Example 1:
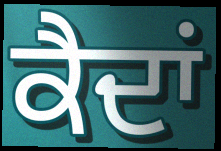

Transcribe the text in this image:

ਕੈਦਾਂ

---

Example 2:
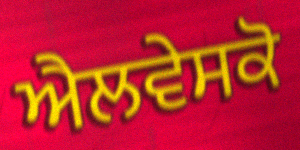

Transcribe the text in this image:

ਐਲਵੇਸਕੋ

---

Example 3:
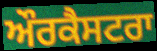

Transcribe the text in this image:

ਔਰਕੈਸਟਰਾ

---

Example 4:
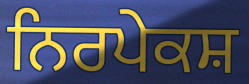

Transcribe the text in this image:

ਨਿਰਪੇਕਸ਼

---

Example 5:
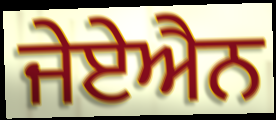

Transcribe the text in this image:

ਜੇਏਐਨ